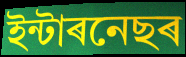
ইন্টাৰনেছৰ